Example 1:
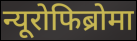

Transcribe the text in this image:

न्यूरोफिब्रोमा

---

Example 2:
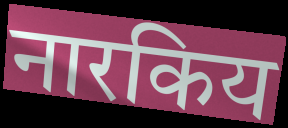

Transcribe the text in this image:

नारकिय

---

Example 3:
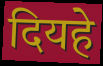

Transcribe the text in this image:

दियहे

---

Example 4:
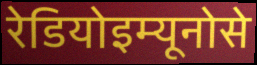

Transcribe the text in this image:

रेडियोइम्यूनोसे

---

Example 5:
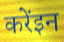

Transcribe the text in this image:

करेंइन